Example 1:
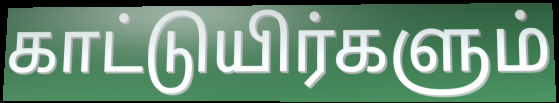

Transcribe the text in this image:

காட்டுயிர்களும்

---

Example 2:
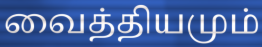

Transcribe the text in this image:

வைத்தியமும்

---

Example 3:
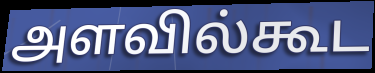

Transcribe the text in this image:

அளவில்கூட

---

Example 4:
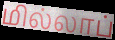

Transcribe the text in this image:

மில்லாப்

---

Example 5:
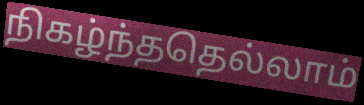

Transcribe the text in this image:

நிகழ்ந்ததெல்லாம்